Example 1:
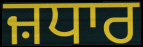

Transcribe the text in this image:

ਜ਼ਧਾਰ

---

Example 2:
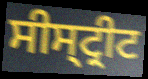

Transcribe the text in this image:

ਸੀਸ੍ਟ੍ਰੀਟ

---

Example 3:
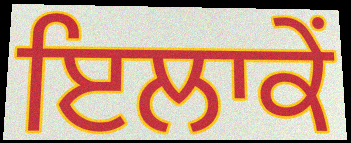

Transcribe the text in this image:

ਇਲਾਕੇਂ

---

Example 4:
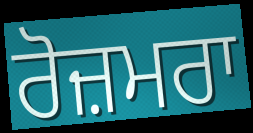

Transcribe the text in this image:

ਰੋਜ਼ਮਰਾ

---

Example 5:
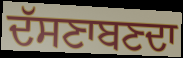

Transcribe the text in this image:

ਦੱਸਣਾਬਣਦਾ